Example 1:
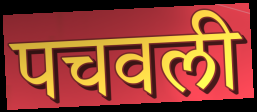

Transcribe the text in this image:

पचवली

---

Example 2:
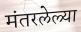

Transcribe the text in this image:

मंतरलेल्या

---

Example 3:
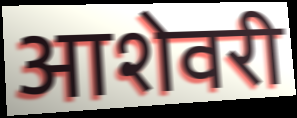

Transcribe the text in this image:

आशेवरी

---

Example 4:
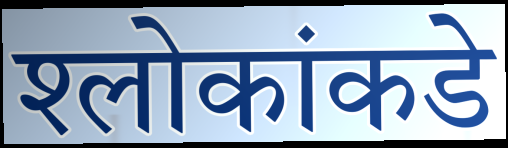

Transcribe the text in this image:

श्लोकांकडे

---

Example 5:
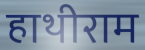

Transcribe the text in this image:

हाथीराम